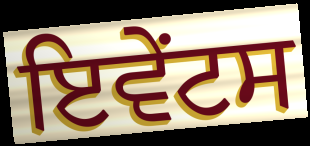
ਇਵੇੰਟਸ